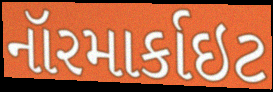
નૉરમાર્કાઇટ